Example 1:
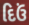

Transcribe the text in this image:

દિઉં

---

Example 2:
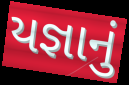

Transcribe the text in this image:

યજ્ઞાનું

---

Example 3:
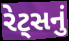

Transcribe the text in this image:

રેટ્સનું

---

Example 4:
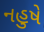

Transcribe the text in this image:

નહુષે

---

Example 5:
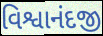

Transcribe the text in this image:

વિશ્વાનંદજી